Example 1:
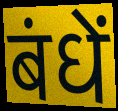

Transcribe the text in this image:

बंधें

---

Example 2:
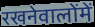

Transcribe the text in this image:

रखनेवालोंमें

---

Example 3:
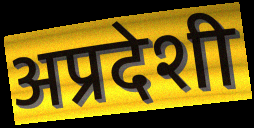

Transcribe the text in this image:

अप्रदेशी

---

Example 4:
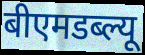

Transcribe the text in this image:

बीएमडब्ल्यू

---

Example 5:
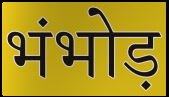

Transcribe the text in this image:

भंभोड़